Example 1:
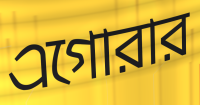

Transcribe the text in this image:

এগোরার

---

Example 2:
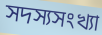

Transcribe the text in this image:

সদস্যসংখ্যা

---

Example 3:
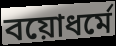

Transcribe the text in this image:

বয়োধর্মে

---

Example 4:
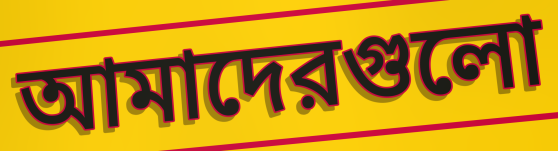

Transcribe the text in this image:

আমাদেরগুলো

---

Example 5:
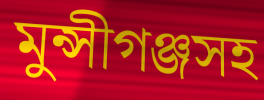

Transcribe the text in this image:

মুন্সীগঞ্জসহ